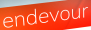
endevour